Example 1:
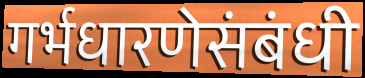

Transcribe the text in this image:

गर्भधारणेसंबंधी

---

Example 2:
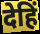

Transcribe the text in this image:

देहिं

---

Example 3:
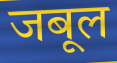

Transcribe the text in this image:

जबूल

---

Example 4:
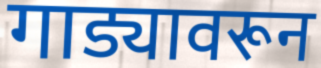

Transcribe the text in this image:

गाड्यावरून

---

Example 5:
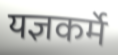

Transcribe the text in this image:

यज्ञकर्मे